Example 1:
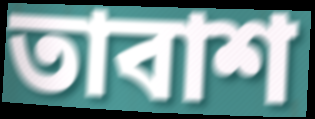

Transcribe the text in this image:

তাবাশ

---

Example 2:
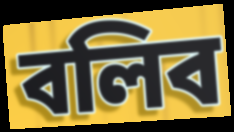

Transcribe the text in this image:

বলিব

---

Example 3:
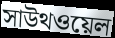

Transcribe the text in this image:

সাউথওয়েল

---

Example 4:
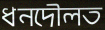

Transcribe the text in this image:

ধনদৌলত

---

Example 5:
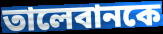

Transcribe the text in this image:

তালেবানকে